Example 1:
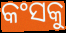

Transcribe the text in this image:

କଂସକୁ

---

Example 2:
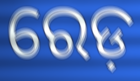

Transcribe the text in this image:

ରେଡ଼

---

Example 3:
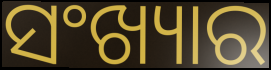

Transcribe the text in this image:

ସଂଖ୍ୟାର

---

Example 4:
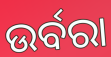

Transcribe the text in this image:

ଉର୍ବରା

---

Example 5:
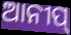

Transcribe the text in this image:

ଆନୀପ୍